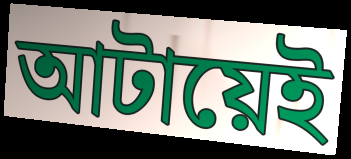
আটায়েই